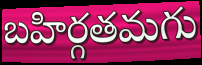
బహిర్గతమగు